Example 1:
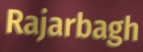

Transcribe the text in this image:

Rajarbagh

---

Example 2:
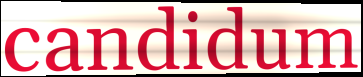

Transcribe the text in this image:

candidum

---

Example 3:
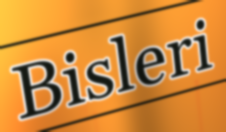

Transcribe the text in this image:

Bisleri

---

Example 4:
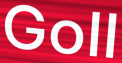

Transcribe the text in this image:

Goll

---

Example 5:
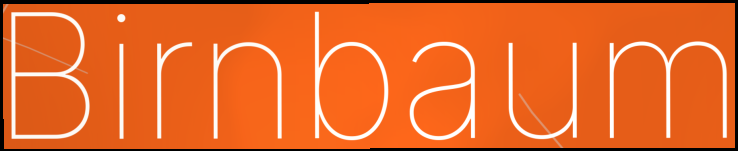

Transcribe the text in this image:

Birnbaum